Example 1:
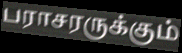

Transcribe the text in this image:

பராசரருக்கும்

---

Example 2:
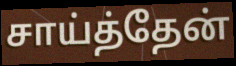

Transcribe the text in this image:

சாய்த்தேன்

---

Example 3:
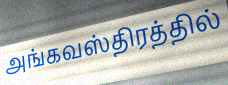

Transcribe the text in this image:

அங்கவஸ்திரத்தில்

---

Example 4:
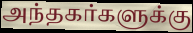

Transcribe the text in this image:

அந்தகர்களுக்கு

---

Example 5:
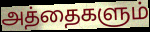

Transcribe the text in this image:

அத்தைகளும்